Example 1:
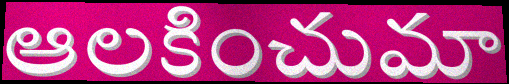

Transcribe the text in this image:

ఆలకించుమా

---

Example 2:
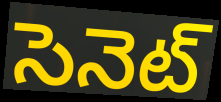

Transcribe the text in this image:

సెనెట్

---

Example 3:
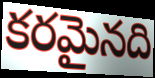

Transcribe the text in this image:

కరమైనది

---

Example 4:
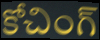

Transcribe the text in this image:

కోచింగ్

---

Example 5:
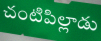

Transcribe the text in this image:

చంటిపిల్లాడు